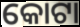
କୋଟା